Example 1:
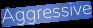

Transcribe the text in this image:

Aggressive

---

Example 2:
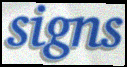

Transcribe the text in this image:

signs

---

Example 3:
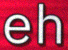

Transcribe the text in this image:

eh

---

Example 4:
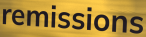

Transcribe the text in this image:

remissions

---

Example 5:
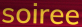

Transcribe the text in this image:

soiree